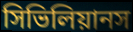
সিভিলিয়ানস